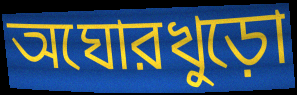
অঘোরখুড়ো